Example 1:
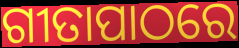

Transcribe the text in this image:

ଗୀତାପାଠରେ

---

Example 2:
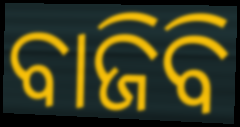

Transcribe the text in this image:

ବାଜିବି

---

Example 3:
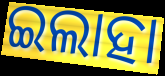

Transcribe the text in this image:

ଇଲାହା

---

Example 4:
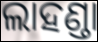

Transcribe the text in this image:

ଲାହଣ୍ଡା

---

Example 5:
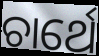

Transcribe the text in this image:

ଚାର୍ଥେ